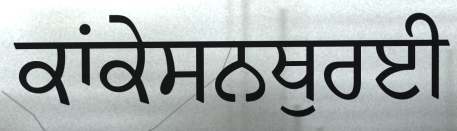
ਕਾਂਕੇਸਨਥੁਰਈ